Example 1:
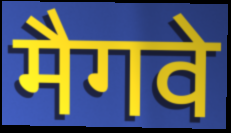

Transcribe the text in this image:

मैगवे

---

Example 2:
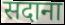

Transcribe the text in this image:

सदाना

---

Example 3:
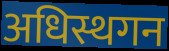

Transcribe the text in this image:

अधिस्थगन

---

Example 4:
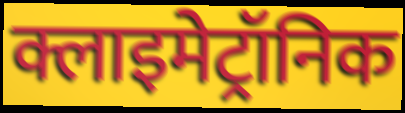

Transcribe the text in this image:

क्लाइमेट्रॉनिक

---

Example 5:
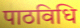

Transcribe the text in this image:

पाठविधि